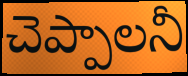
చెప్పాలనీ